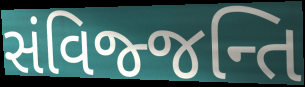
સંવિજ્જન્તિ